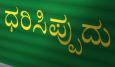
ಧರಿಸಿಪ್ಪುದು